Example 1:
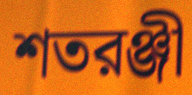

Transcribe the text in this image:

শতরঞ্জী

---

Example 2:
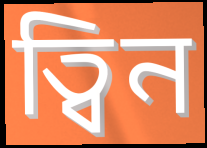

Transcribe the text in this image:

ত্বিন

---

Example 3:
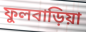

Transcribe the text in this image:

ফুলবাড়িয়া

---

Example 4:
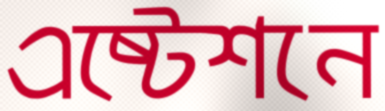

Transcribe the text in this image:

এষ্টেশনে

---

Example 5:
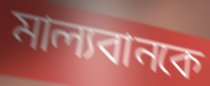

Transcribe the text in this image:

মাল্যবানকে